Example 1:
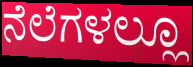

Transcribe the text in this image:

ನೆಲೆಗಳಲ್ಲೂ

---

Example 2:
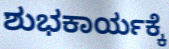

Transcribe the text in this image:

ಶುಭಕಾರ್ಯಕ್ಕೆ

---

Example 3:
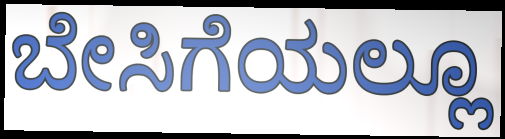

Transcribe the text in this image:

ಬೇಸಿಗೆಯಲ್ಲೂ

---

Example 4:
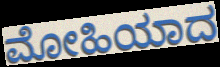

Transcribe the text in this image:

ಮೋಹಿಯಾದ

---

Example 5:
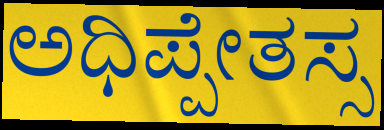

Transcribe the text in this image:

ಅಧಿಪ್ಪೇತಸ್ಸ